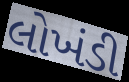
લોખંડી